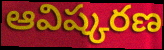
ఆవిష్కరణ